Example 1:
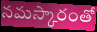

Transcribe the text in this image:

నమస్కారంతో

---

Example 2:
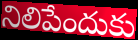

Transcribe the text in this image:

నిలిపేందుకు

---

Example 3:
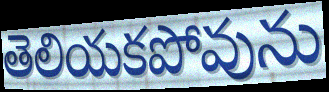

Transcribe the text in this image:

తెలియకపోవును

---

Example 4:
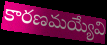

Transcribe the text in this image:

కారణమయ్యేవి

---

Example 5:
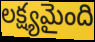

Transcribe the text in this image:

లక్ష్యమైంది